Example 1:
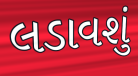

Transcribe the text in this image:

લડાવશું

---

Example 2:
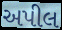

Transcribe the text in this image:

અપીલ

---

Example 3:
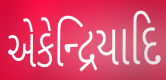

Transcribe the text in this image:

એકેન્દ્રિયાદિ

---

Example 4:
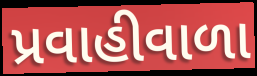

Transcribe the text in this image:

પ્રવાહીવાળા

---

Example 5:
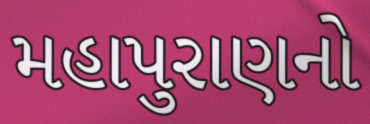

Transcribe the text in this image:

મહાપુરાણનો